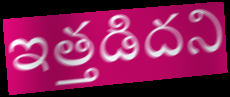
ఇత్తడిదని